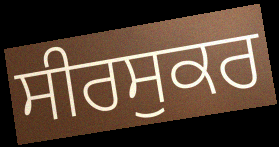
ਸੀਰਸੁਕਰ